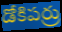
డోకిపర్రు